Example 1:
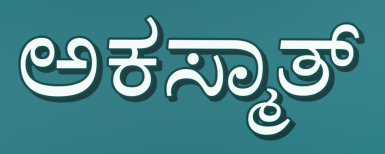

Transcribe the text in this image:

ಅಕಸ್ಮಾತ್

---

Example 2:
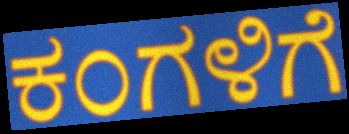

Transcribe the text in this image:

ಕಂಗಳಿಗೆ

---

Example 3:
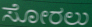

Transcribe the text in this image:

ಸೋರಲು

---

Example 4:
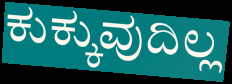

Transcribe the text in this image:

ಕುಕ್ಕುವುದಿಲ್ಲ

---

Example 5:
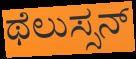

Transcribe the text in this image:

ಥೆಲುಸ್ಸನ್